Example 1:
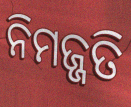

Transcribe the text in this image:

ନିମଜ୍ଜତି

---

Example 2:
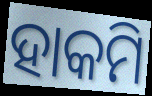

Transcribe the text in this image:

ହାକମି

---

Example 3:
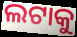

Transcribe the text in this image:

ଲଟାକୁ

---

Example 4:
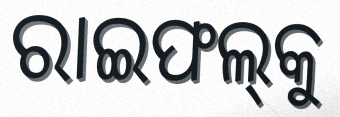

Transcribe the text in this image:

ରାଇଫଲ୍‍କୁ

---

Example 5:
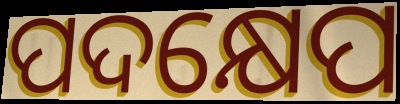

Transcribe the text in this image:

ପଦକ୍ଷେପ